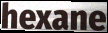
hexane